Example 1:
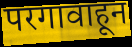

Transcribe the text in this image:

परगावाहून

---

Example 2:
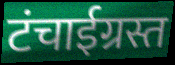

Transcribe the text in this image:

टंचाईग्रस्त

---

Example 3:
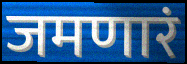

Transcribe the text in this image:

जमणारं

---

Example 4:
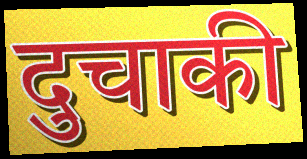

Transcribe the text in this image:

दुचाकी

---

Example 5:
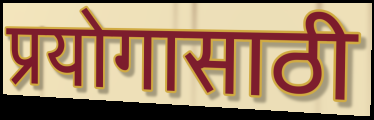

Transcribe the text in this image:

प्रयोगासाठी